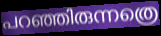
പറഞ്ഞിരുന്നത്രെ